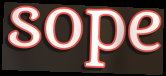
sope